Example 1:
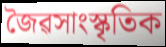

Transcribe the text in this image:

জৈৱসাংস্কৃতিক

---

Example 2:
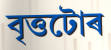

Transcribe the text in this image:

বৃত্তটোৰ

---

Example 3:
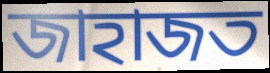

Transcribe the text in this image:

জাহাজত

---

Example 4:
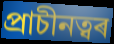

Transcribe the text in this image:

প্ৰাচীনত্বৰ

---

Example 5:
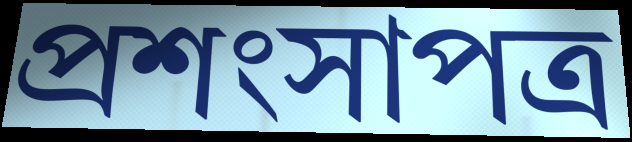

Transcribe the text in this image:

প্ৰশংসাপত্ৰ